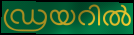
ഡ്രയറിൽ